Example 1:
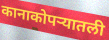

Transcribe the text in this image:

कानाकोपऱ्यातली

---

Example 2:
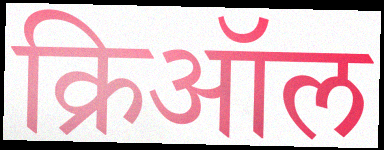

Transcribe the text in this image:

क्रिऑल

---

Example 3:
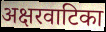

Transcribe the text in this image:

अक्षरवाटिका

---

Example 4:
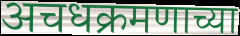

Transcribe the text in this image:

अचधक्रमणाच्या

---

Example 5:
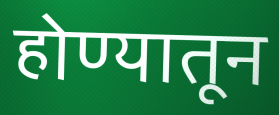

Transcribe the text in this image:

होण्यातून